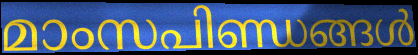
മാംസപിണ്ഡങ്ങൾ